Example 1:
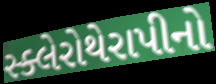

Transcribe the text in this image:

સ્ક્લેરોથેરાપીનો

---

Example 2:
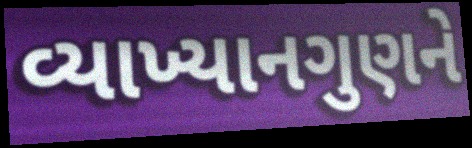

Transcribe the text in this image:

વ્યાખ્યાનગુણને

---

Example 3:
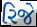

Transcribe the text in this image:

રિજે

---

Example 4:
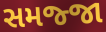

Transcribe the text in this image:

સમજ્જા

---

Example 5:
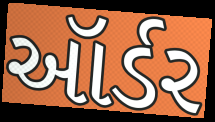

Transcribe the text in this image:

ઑર્ડર